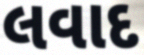
લવાદ